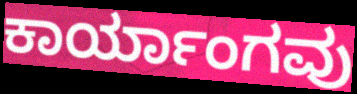
ಕಾರ್ಯಾಂಗವು